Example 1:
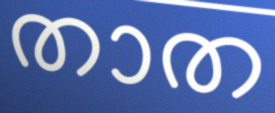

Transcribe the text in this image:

താത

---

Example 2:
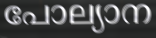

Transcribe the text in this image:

പോല്യാന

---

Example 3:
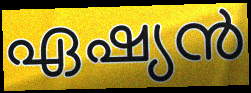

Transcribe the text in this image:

ഏഷ്യൻ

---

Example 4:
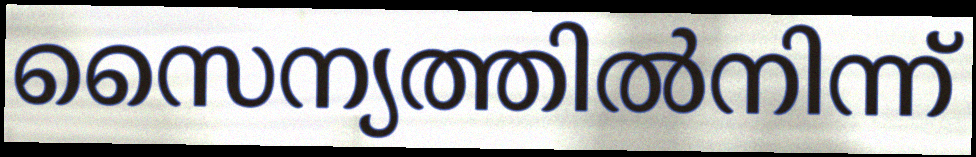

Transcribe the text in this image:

സൈന്യത്തിൽനിന്ന്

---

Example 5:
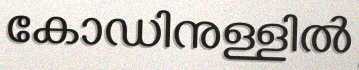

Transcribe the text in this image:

കോഡിനുള്ളിൽ